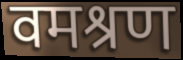
वमश्रण